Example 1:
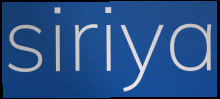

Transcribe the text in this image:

siriya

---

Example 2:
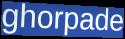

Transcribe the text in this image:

ghorpade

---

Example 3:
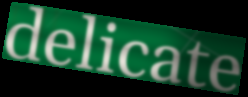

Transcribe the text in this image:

delicate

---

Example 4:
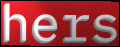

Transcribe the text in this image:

hers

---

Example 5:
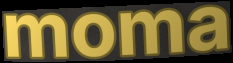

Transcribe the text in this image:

moma